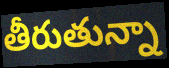
తీరుతున్నా